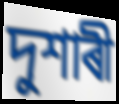
দুশাৰী